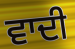
ਵਾਦੀ